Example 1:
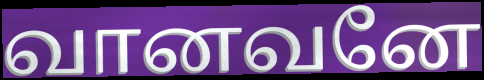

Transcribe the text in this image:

வானவனே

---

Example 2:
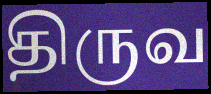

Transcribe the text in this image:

திருவ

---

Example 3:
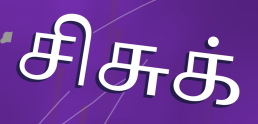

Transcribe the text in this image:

சிசுக்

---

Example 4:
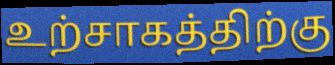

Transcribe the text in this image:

உற்சாகத்திற்கு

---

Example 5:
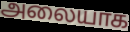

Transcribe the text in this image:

அலையாக